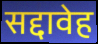
सद्दावेह